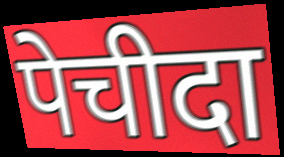
पेचीदा